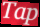
Tap